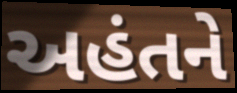
અહંતને